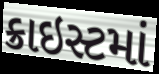
ક્રાઇસ્ટમાં